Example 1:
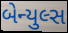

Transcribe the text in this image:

બેન્યુલ્સ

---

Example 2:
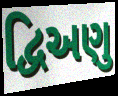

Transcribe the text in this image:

દ્વિઅણુ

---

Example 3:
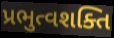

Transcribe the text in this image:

પ્રભુત્વશક્તિ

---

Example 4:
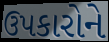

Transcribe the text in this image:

ઉપકારોને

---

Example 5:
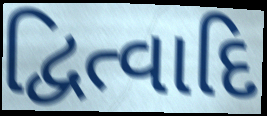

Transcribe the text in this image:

દ્વિત્વાદિ